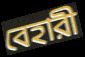
বেহারী